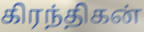
கிரந்திகன்